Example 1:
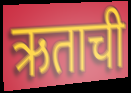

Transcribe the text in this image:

ऋताची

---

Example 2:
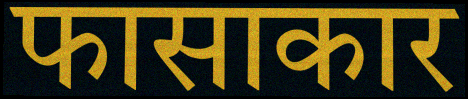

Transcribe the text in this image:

फासाकार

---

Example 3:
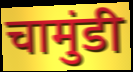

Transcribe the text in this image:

चामुंडी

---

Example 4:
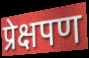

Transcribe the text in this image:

प्रेक्षपण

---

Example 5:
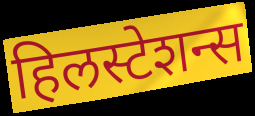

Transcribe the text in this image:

हिलस्टेशन्स